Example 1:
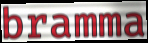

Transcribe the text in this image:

bramma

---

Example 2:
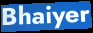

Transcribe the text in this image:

Bhaiyer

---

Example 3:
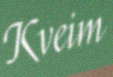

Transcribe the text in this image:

Kveim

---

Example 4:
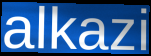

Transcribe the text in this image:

alkazi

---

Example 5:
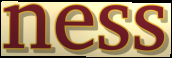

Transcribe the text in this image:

ness